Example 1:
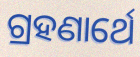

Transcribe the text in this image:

ଗ୍ରହଣାର୍ଥେ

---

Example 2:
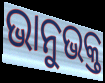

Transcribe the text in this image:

ଭାନୁଭକ୍ତ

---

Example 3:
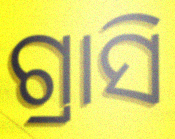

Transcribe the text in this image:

ଗ୍ରାସି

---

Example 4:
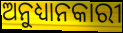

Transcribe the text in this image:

ଅନୁଧ୍ୟାନକାରୀ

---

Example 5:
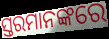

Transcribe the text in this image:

ସ୍ତରମାନଙ୍କରେ